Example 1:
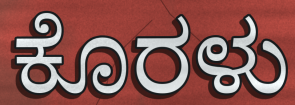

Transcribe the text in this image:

ಕೊರಳು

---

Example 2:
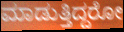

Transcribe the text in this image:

ಮಾಡುತ್ತಿದ್ದರೋ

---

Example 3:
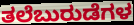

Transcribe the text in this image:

ತಲೆಬುರುಡೆಗಳ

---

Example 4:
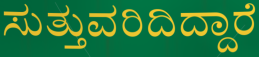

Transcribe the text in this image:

ಸುತ್ತುವರಿದಿದ್ದಾರೆ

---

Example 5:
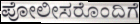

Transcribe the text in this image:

ಪೋಲೀಸರೊಂದಿಗೆ